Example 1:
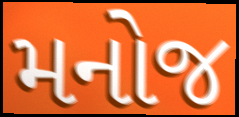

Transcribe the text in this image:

મનોજ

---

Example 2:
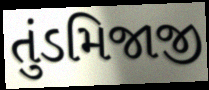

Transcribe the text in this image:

તુંડમિજાજી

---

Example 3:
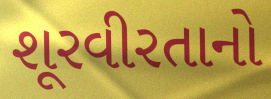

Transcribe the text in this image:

શૂરવીરતાનો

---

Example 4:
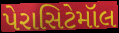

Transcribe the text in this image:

પેરાસિટેમૉલ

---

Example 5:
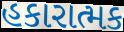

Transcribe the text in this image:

હકારાત્મક